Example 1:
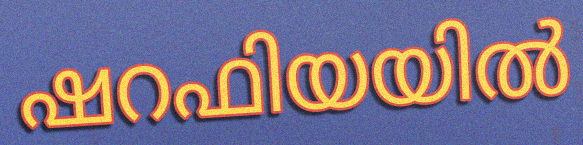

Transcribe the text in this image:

ഷറഫിയയിൽ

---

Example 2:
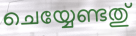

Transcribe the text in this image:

ചെയ്യേണ്ടതു്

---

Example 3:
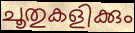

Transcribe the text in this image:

ചൂതുകളിക്കും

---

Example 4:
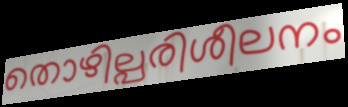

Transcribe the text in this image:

തൊഴില്പരിശീലനം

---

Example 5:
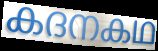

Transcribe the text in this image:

കദനകഥ